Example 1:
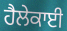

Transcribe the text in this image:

ਹੈਲੇਕਾਈ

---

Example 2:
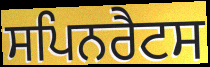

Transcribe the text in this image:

ਸਪਿਨਰੈਟਸ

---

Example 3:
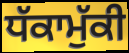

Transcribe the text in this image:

ਧੱਕਾਮੁੱਕੀ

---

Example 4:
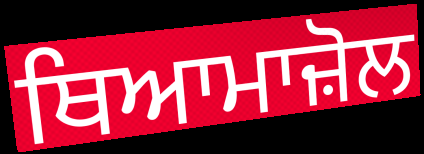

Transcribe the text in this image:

ਥਿਆਮਾਜ਼ੋਲ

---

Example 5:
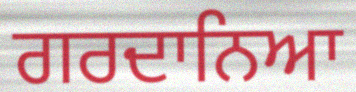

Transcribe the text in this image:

ਗਰਦਾਨਿਆ